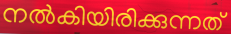
നൽകിയിരിക്കുന്നത്